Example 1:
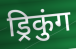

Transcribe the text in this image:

ड्रिकुंग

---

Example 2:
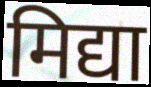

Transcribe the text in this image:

मिद्या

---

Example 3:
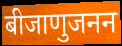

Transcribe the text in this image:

बीजाणुजनन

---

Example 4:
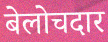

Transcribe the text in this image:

बेलोचदार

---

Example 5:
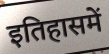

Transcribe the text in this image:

इतिहासमें